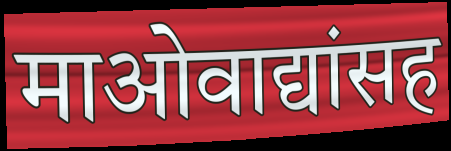
माओवाद्यांसह